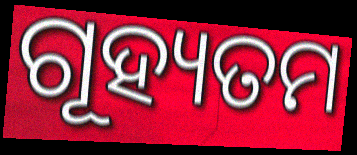
ଗୂହ୍ୟତମ